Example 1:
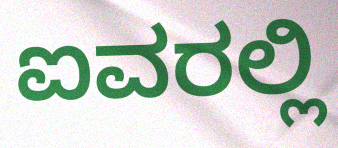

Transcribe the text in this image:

ಐವರಲ್ಲಿ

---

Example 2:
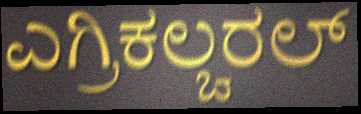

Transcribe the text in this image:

ಎಗ್ರಿಕಲ್ಚರಲ್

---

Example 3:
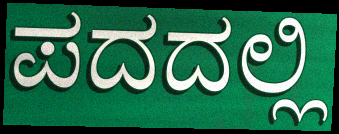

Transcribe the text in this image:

ಪದದಲ್ಲಿ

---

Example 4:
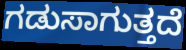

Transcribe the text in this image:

ಗಡುಸಾಗುತ್ತದೆ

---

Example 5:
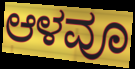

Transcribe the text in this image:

ಆಳವೂ